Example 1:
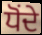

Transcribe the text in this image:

ਧੋਂਦੇ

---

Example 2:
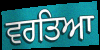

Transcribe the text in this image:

ਵਰਤਿਆ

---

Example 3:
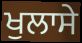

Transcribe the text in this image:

ਖੁਲਾਸੇ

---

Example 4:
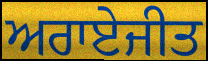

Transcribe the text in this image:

ਅਰਾਏਜੀਤ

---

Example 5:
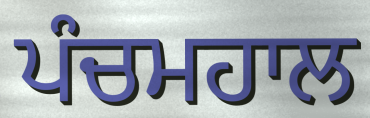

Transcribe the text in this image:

ਪੰਚਮਹਾਲ